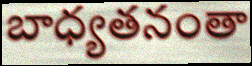
బాధ్యతనంతా